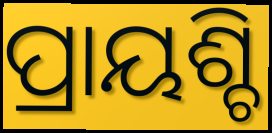
ପ୍ରାୟଶ୍ଚି